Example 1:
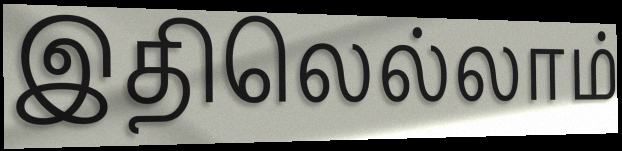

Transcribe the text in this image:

இதிலெல்லாம்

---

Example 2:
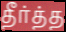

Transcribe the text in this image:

தீர்த்த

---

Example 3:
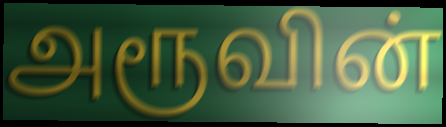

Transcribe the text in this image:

அரூவின்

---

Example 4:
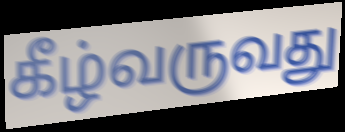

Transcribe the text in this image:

கீழ்வருவது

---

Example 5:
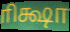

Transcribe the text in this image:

ரிக்ஷா